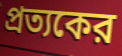
প্রত্যকের